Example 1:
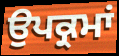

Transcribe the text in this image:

ਉਪਕ੍ਰਮਾਂ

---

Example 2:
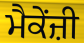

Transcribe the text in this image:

ਮੈਕੇਂਜ਼ੀ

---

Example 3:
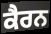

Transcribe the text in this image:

ਕੈਰਨ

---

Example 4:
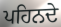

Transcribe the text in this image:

ਪਹਿਨਦੇ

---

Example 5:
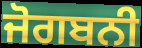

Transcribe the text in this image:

ਜੋਗਬਨੀ